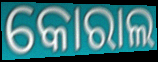
କୋରାଲ